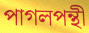
পাগলপন্থী